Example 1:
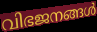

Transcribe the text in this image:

വിഭജനങ്ങൾ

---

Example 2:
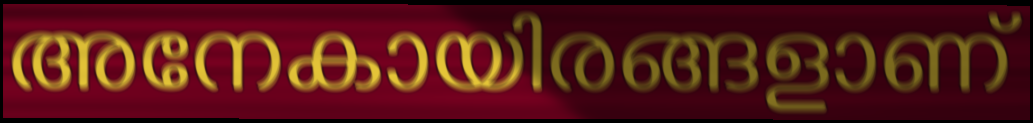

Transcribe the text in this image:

അനേകായിരങ്ങളാണ്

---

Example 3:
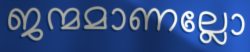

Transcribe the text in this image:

ജന്മമാണല്ലോ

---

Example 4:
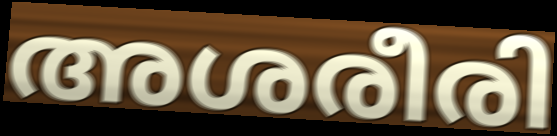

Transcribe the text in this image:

അശരീരി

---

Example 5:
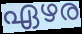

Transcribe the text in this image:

ഏഴര